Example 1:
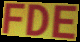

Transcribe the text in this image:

FDE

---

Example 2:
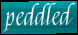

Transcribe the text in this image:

peddled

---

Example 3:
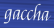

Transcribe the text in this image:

gaccha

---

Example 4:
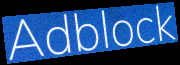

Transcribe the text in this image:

Adblock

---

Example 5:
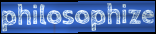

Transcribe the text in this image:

philosophize